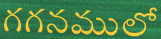
గగనములో